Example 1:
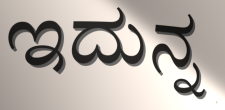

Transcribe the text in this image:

ಇದುನ್ನ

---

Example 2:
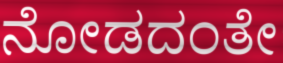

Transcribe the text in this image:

ನೋಡದಂತೇ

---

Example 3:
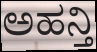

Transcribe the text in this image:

ಅಹನ್ತಿ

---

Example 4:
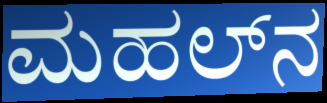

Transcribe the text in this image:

ಮಹಲ್‌ನ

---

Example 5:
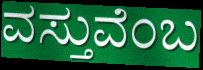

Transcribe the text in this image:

ವಸ್ತುವೆಂಬ